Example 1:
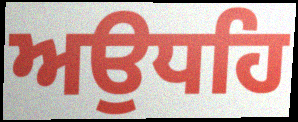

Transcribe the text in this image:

ਅਉਧਹਿ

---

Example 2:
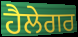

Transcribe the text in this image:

ਹੈਲੇਗਰ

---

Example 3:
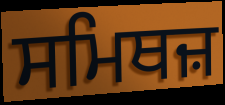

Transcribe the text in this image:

ਸਮਿਥਜ਼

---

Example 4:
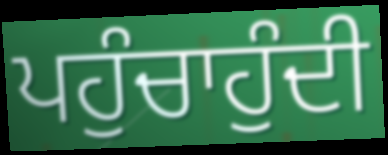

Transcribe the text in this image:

ਪਹੁੰਚਾਹੁੰਦੀ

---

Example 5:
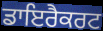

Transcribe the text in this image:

ਡਾਇਰੈਕਰਟ